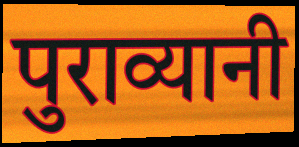
पुराव्यानी